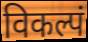
विकल्पं